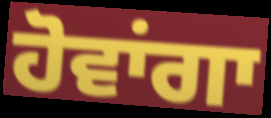
ਹੋਵਾਂਗਾ